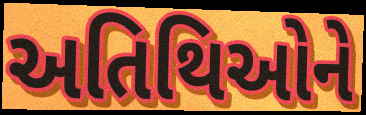
અતિથિઓને